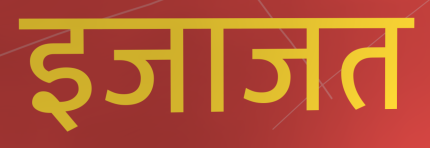
इजाजत